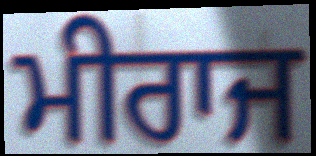
ਮੀਰਾਜ